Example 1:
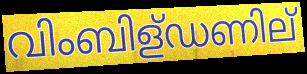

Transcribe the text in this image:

വിംബിള്ഡണില്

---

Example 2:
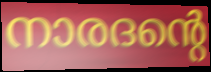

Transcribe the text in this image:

നാരദന്റെ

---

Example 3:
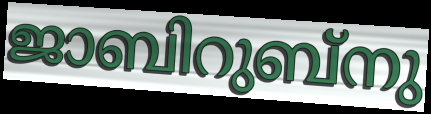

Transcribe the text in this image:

ജാബിറുബ്നു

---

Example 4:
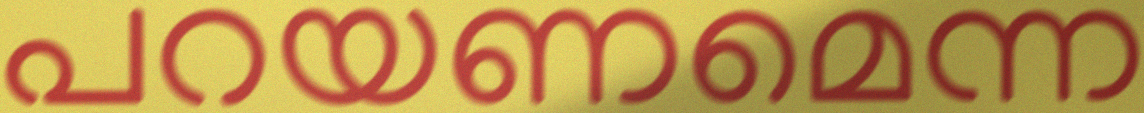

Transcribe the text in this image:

പറയണമെന്ന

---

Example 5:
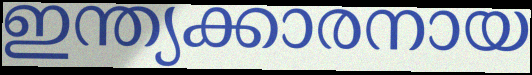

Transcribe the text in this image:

ഇന്ത്യക്കാരനായ